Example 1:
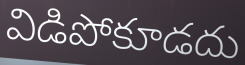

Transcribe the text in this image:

విడిపోకూడదు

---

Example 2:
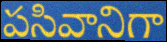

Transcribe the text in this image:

పసివానిగా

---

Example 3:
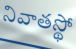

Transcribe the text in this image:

నివాతస్థో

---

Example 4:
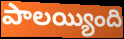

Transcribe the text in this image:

పాలయ్యింది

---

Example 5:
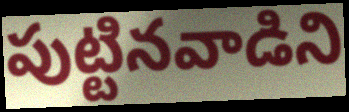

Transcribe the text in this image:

పుట్టినవాడిని